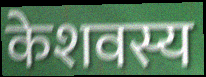
केशवस्य